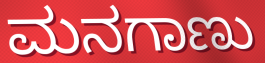
ಮನಗಾಣು